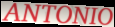
ANTONIO